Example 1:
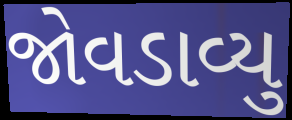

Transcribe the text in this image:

જોવડાવ્યુ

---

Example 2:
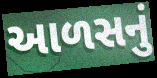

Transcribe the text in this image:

આળસનું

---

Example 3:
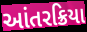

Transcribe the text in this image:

આંતરક્રિયા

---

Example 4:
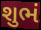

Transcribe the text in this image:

શુભં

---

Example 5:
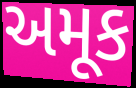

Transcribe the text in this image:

અમૂક